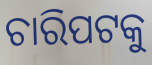
ଚାରିପଟକୁ